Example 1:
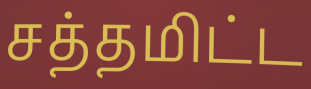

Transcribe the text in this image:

சத்தமிட்ட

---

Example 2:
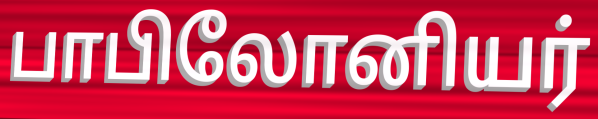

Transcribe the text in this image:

பாபிலோனியர்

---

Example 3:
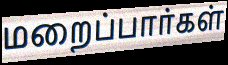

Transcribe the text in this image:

மறைப்பார்கள்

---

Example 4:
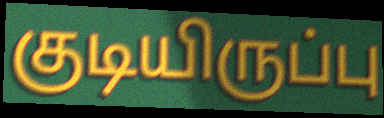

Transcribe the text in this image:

குடியிருப்பு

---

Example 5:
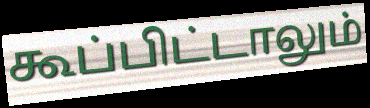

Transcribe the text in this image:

கூப்பிட்டாலும்